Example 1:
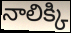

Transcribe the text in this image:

నాలిక్కి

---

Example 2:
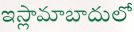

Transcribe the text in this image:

ఇస్లామాబాదులో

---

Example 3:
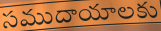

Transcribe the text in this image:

సముదాయాలకు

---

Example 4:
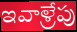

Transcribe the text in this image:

ఇవాళ్రేపు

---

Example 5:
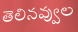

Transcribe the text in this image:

తెలినవ్వుల